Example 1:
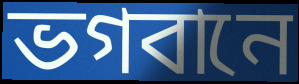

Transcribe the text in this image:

ভগবানে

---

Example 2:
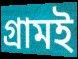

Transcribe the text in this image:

গ্রামই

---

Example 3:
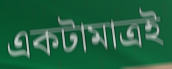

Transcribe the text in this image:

একটামাত্রই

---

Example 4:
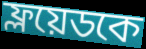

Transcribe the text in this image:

ফ্লয়েডকে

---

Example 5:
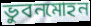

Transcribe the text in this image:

ভুবনমোহন